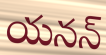
యనన్